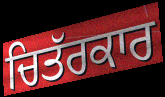
ਚਿਤੱਰਕਾਰ